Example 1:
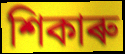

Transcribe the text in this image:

শিকাৰু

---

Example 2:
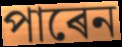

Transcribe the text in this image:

পাৰেন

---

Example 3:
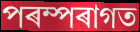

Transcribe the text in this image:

পৰম্পৰাগত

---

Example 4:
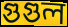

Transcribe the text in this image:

গুগুল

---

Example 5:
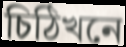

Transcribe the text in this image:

চিঠিখনে